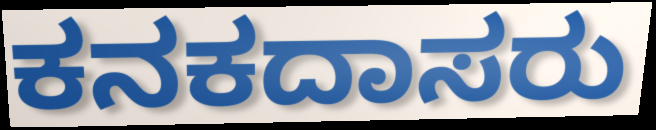
ಕನಕದಾಸರು